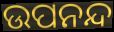
ଉପନନ୍ଦ